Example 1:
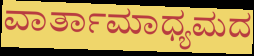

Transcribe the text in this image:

ವಾರ್ತಾಮಾಧ್ಯಮದ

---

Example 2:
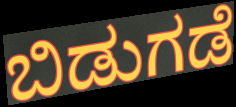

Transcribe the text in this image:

ಬಿಡುಗಡೆ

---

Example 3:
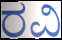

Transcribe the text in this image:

ರವಿ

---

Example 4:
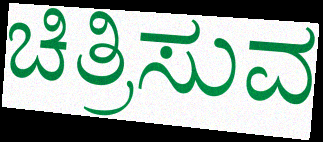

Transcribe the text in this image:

ಚಿತ್ರಿಸುವ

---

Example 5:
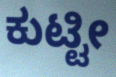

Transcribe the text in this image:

ಕುಟ್ಟೀ